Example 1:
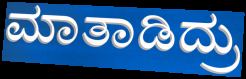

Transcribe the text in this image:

ಮಾತಾಡಿದ್ರು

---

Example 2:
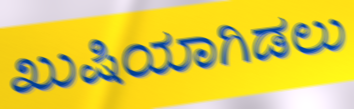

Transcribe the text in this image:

ಖುಷಿಯಾಗಿಡಲು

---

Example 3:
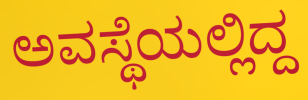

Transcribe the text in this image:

ಅವಸ್ಥೆಯಲ್ಲಿದ್ದ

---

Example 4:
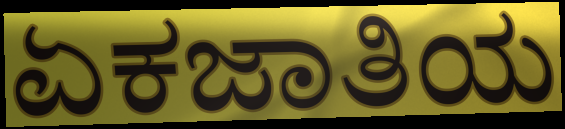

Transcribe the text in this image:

ಏಕಜಾತಿಯ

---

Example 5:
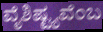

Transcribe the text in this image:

ವೈಶಿಷ್ಟ್ಯವೆಂಬ